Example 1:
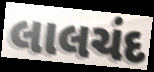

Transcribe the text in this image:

લાલચંદ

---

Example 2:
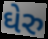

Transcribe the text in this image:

ઘેરુ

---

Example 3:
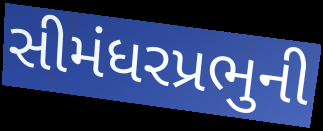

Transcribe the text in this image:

સીમંધરપ્રભુની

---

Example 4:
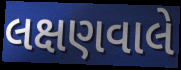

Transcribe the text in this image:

લક્ષણવાલે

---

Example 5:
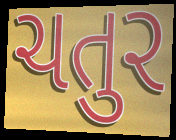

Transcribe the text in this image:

ચતુર